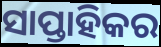
ସାପ୍ତାହିକର